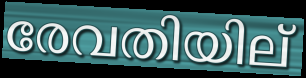
രേവതിയില്